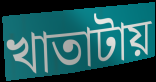
খাতাটায়